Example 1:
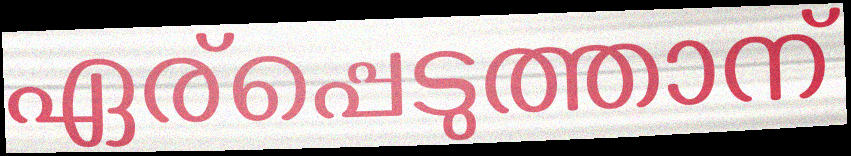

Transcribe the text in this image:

ഏര്പ്പെടുത്താന്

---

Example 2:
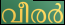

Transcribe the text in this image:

വീരർ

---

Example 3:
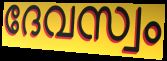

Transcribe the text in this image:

ദേവസ്വം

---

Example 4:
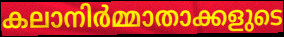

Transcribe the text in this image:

കലാനിർമ്മാതാക്കളുടെ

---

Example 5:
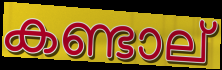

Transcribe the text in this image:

കണ്ടാല്